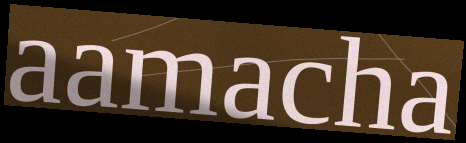
aamacha